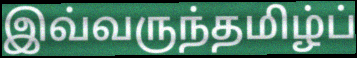
இவ்வருந்தமிழ்ப்